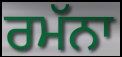
ਰਮੱਨਾ